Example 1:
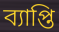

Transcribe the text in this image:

ব্যাপ্তি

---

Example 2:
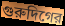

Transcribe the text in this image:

গুরুদিগের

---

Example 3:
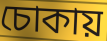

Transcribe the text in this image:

চোকায়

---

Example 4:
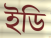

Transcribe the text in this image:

ইডি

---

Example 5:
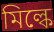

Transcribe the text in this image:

মিল্কে